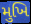
મુખિ